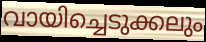
വായിച്ചെടുക്കലും